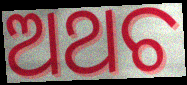
ଅଥଚ